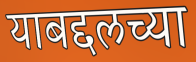
याबद्दलच्या